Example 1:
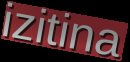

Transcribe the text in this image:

izitina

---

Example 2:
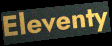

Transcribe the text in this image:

Eleventy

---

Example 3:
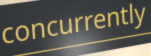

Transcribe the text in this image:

concurrently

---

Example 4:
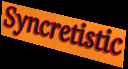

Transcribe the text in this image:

Syncretistic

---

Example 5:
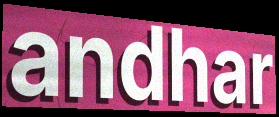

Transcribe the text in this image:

andhar